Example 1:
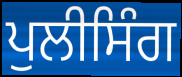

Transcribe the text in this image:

ਪੁਲੀਸਿੰਗ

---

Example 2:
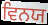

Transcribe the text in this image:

ਵਿਨਯ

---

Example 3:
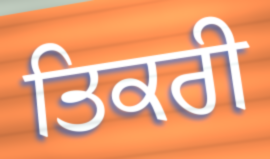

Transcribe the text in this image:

ਤਿਕਰੀ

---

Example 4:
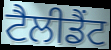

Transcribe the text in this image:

ਟੈਲੀਡੈਂਟ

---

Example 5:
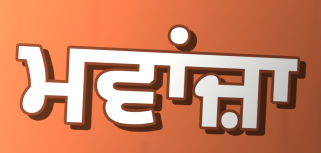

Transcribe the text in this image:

ਮਵਾਂਜ਼ਾ